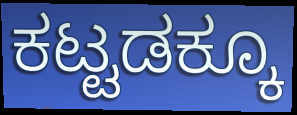
ಕಟ್ಟಡಕ್ಕೂ